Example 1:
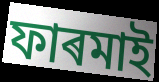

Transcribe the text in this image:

ফাৰমাই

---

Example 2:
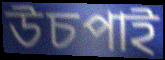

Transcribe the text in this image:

উচপাই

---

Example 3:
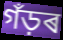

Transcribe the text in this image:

গঁড়ৰ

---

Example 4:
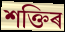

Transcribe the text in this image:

শক্তিৰ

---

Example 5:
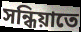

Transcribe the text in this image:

সন্ধিয়াতে